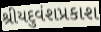
શ્રીયદુવંશપ્રકાશ